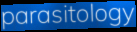
parasitology